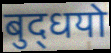
बुद्धयो